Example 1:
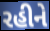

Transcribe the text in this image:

રહીને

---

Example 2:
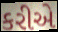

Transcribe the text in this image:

કરીએ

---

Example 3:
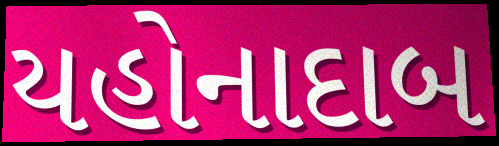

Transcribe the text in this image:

યહોનાદાબ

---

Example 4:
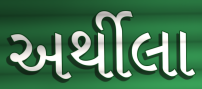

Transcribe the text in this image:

અર્થીલા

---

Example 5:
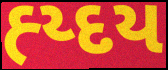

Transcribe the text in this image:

હ્ય્દય